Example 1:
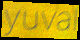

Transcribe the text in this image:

yuval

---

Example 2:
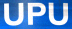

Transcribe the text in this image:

UPU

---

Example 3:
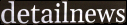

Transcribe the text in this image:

detailnews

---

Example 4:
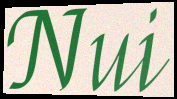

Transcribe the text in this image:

Nui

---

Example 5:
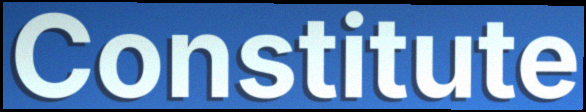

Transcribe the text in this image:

Constitute